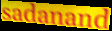
sadanand